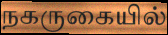
நகருகையில்